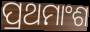
ପ୍ରଥମାଂଶ